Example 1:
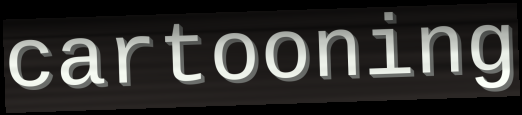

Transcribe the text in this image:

cartooning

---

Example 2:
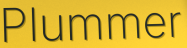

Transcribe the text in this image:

Plummer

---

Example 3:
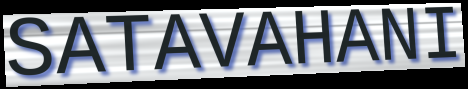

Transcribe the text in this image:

SATAVAHANI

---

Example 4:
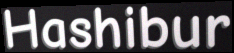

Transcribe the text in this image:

Hashibur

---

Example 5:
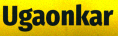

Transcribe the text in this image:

Ugaonkar